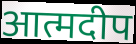
आत्मदीप